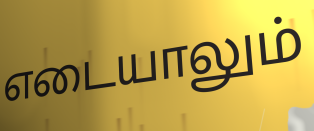
எடையாலும்